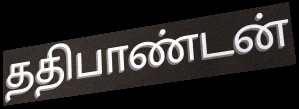
ததிபாண்டன்